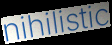
nihilistic